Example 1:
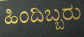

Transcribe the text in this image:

ಹಿಂದಿಬ್ಬರು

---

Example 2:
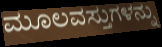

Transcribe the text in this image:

ಮೂಲವಸ್ತುಗಳನ್ನು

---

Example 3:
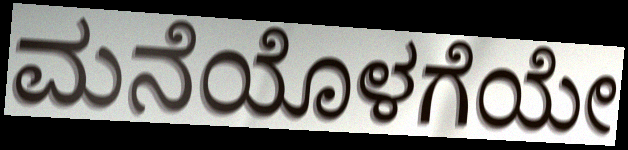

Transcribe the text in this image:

ಮನೆಯೊಳಗೆಯೇ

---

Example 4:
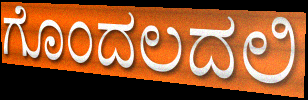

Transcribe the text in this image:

ಗೊಂದಲದಲಿ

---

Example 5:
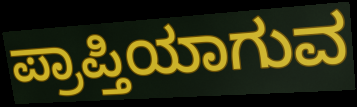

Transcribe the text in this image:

ಪ್ರಾಪ್ತಿಯಾಗುವ